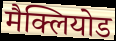
मैक्लियोड